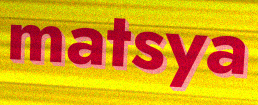
matsya